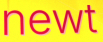
newt